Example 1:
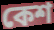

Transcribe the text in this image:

কেশ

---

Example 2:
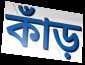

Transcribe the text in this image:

কাঁড়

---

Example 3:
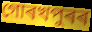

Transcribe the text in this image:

গোৰখপুৰৰ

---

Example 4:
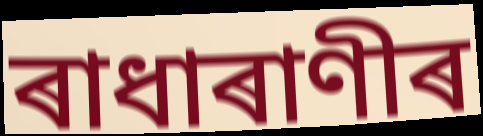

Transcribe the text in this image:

ৰাধাৰাণীৰ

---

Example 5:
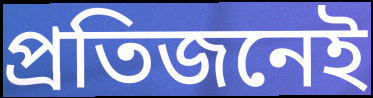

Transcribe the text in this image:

প্ৰতিজনেই